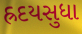
હ્રદયસુધા